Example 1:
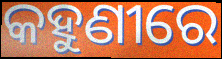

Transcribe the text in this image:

କହୁଣୀରେ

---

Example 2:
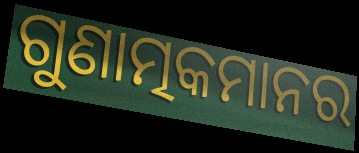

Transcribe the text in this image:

ଗୁଣାତ୍ମକମାନର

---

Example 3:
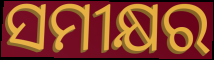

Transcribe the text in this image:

ସମୀକ୍ଷର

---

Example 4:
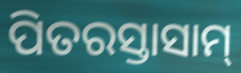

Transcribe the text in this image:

ପିତରସ୍ତାସାମ୍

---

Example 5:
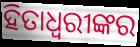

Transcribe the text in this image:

ହିତାଧ୍ଵରୀଙ୍କର